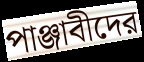
পাঞ্জাবীদের